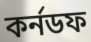
কর্নডফ